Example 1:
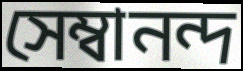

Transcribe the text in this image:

সেম্বানন্দ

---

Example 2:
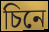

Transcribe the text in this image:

চিনে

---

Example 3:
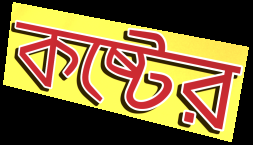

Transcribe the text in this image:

কষ্টের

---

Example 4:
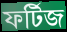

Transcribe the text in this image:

ফর্টিজ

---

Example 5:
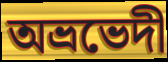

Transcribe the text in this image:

অভ্রভেদী